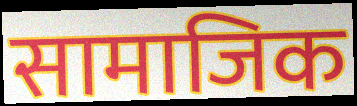
सामाजिक